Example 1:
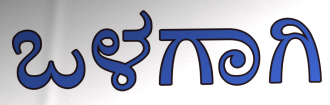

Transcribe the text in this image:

ಒಳಗಾಗಿ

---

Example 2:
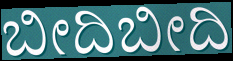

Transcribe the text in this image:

ಬೀದಿಬೀದಿ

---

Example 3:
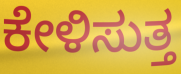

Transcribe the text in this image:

ಕೇಳಿಸುತ್ತ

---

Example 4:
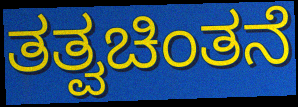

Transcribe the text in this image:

ತತ್ವಚಿಂತನೆ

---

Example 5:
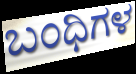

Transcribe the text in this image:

ಬಂಧಿಗಳ